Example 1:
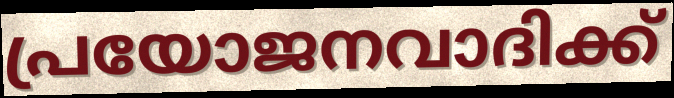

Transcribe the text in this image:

പ്രയോജനവാദിക്ക്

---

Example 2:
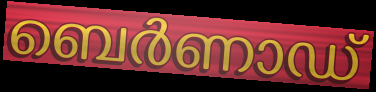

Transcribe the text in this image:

ബെർണാഡ്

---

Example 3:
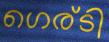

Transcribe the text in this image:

ഗെര്ടി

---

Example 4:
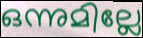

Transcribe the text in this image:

ഒന്നുമില്ലേ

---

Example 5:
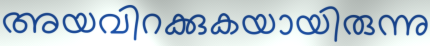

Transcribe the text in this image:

അയവിറക്കുകയായിരുന്നു